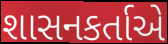
શાસનકર્તાએ